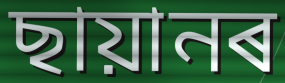
ছায়ানৰ